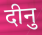
दीनु